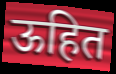
ऊहित